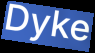
Dyke